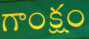
గాంక్షం